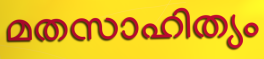
മതസാഹിത്യം